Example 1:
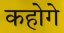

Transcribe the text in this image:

कहोगे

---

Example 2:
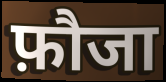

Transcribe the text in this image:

फ़ौजा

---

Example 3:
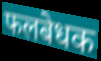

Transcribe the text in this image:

फलबेधक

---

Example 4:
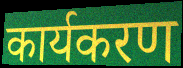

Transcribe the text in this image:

कार्यकरण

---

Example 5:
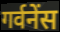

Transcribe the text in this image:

गर्वनेंस